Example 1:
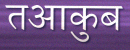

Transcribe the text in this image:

तआकुब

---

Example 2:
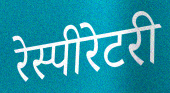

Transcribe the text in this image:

रेस्पीरेटरी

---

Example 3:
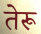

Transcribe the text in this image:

तेरू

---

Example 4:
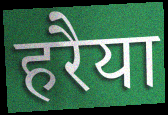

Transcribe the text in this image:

हरैया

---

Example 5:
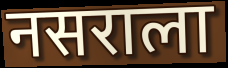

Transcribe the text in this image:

नसराला